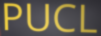
PUCL